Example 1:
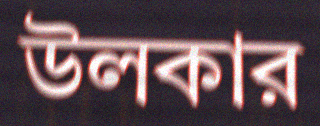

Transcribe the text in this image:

উলকার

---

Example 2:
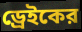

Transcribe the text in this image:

ড্রেইকের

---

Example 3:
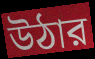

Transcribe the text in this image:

উঠার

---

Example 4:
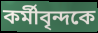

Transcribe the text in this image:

কর্মীবৃন্দকে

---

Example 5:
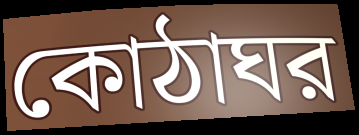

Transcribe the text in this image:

কোঠাঘর